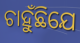
ଚାହୁଁଛିଯେ